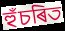
হুঁচৰিত